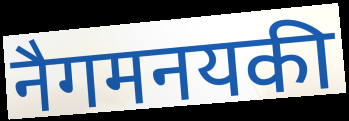
नैगमनयकी